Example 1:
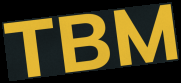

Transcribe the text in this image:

TBM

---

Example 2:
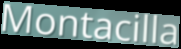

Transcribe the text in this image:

Montacilla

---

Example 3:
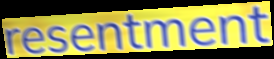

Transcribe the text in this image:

resentment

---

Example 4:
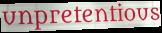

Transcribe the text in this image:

unpretentious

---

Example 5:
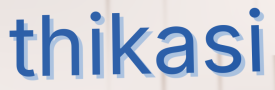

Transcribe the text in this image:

thikasi